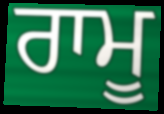
ਰਾਮੂ